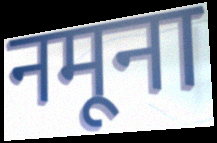
नमूना